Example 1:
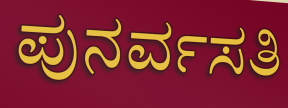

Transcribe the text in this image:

ಪುನರ್ವಸತಿ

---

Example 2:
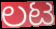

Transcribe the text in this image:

ಲಟ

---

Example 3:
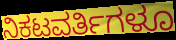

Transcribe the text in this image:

ನಿಕಟವರ್ತಿಗಳೂ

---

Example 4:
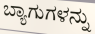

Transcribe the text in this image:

ಬ್ಯಾಗುಗಳನ್ನು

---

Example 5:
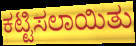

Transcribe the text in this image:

ಕಟ್ಟಿಸಲಾಯಿತು